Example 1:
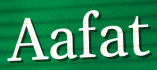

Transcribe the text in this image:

Aafat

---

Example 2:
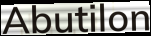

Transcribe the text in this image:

Abutilon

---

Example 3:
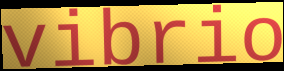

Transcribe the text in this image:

vibrio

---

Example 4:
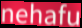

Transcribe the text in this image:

nehafu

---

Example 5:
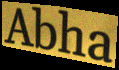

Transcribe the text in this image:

Abha